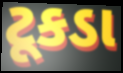
ટૂકડા